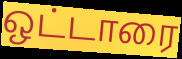
ஒட்டாரை